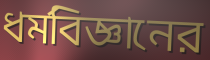
ধর্মবিজ্ঞানের